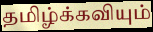
தமிழ்க்கவியும்